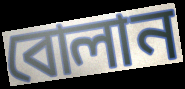
বোলান